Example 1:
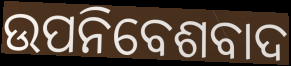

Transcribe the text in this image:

ଉପନିବେଶବାଦ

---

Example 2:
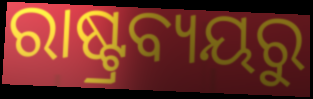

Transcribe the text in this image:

ରାଷ୍ଟ୍ରବ୍ୟୟରୁ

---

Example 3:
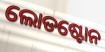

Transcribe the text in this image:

ଲୋଡଷ୍ଟୋନ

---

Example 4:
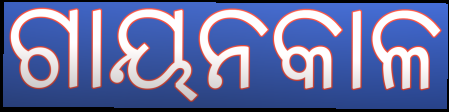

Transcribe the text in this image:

ଗାୟନକାଳ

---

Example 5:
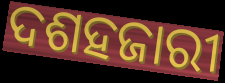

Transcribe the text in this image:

ଦଶହଜାରୀ